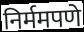
निर्ममपणे